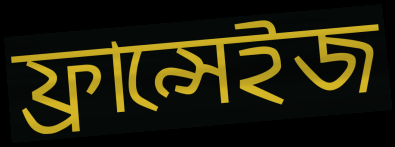
ফ্ৰান্সেইজ